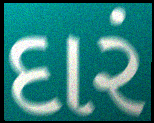
દારં